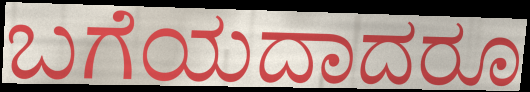
ಬಗೆಯದಾದರೂ